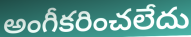
అంగీకరించలేదు